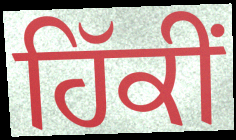
ਹਿੱਕੀਂ